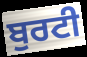
ਬੁਰਟੀ